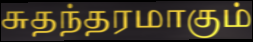
சுதந்தரமாகும்